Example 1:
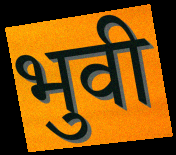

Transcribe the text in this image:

भुवी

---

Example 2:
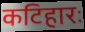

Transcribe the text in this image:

कटिहारः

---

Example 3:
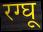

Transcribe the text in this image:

रग्घू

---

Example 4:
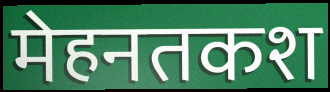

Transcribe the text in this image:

मेहनतकश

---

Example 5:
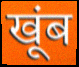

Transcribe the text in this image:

खूंब